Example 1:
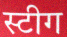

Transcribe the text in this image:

स्टीग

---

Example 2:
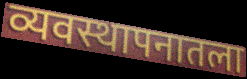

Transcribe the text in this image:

व्यवस्थापनातला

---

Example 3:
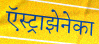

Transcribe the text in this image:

ऍस्ट्राझेनेका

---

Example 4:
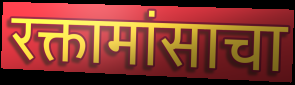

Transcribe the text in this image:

रक्तामांसाचा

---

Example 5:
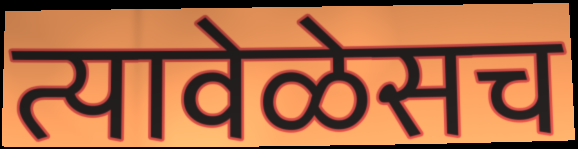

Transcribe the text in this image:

त्यावेळेसच